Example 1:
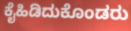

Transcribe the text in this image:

ಕೈಹಿಡಿದುಕೊಂಡರು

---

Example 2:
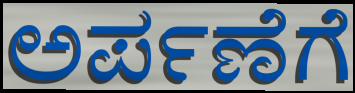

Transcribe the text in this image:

ಅರ್ಪಣೆಗೆ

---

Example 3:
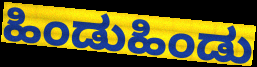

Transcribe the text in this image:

ಹಿಂಡುಹಿಂಡು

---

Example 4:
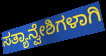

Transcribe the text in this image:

ಸತ್ಯಾನ್ವೇಶಿಗಳಾಗಿ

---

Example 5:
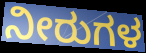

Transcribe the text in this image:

ನೀರುಗಳ